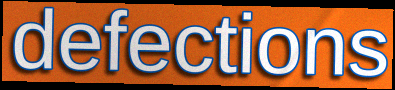
defections